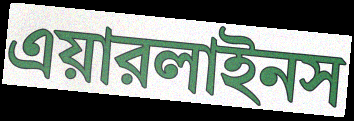
এয়ারলাইনস